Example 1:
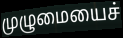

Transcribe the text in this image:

முழுமையைச்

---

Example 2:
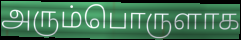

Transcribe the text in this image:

அரும்பொருளாக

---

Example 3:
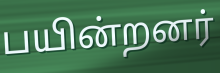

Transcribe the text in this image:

பயின்றனர்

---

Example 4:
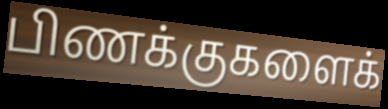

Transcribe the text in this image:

பிணக்குகளைக்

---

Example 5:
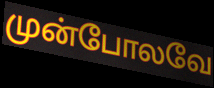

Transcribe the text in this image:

முன்போலவே